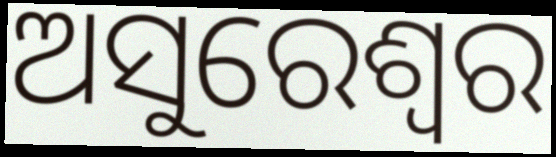
ଅସୁରେଶ୍ଵର